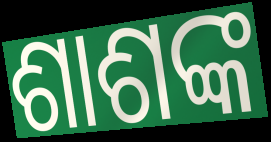
ଶାଶଙ୍କ